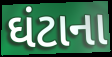
ઘંટાના